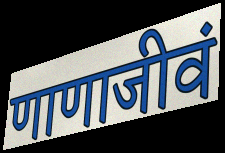
णाणाजीवं